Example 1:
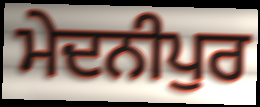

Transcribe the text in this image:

ਮੇਦਨੀਪੁਰ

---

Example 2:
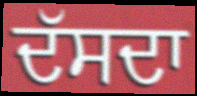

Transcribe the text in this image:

ਦੱਸਦਾ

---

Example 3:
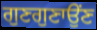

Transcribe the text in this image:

ਗੁਣਗੁਣਾਉਂਣ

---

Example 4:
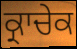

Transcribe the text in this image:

ਕ੍ਰਾਚੇਕ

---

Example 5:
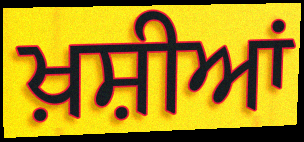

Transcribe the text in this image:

ਖ਼ਸ਼ੀਆਂ